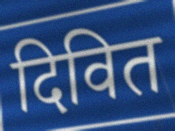
दिवित